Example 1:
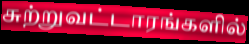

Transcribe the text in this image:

சுற்றுவட்டாரங்களில்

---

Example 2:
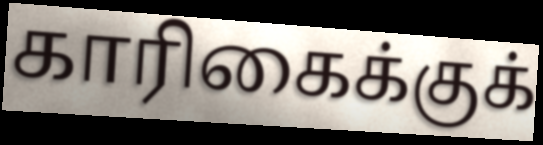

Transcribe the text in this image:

காரிகைக்குக்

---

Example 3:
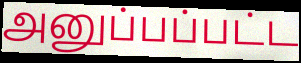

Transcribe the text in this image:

அனுப்பப்பட்ட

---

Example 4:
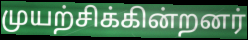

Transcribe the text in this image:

முயற்சிக்கின்றனர்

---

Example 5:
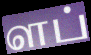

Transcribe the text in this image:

ளப்